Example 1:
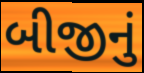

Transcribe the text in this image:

બીજીનું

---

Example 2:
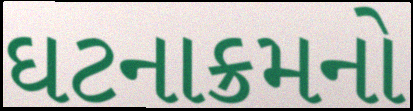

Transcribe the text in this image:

ઘટનાક્રમનો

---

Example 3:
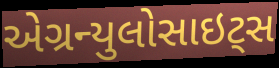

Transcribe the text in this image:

એગ્રન્યુલોસાઇટ્સ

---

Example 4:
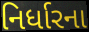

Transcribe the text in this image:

નિર્ધારના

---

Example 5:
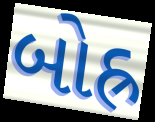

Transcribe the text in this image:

બોહ્ર